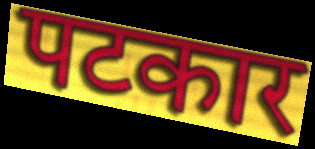
पटकार